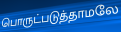
பொருட்படுத்தாமலே